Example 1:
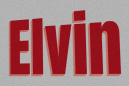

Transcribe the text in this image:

Elvin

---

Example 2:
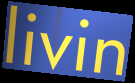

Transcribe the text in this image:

livin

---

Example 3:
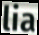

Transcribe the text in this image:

lia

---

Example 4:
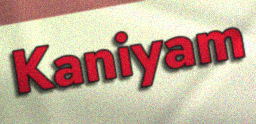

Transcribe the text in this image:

Kaniyam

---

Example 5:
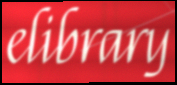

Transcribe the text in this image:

elibrary